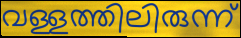
വള്ളത്തിലിരുന്ന്